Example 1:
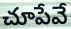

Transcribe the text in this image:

చూపేవే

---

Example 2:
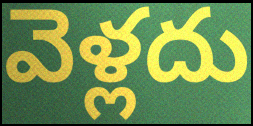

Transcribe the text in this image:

వెళ్లదు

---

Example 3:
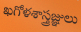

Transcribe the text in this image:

ఖగోళశాస్త్రజ్ఞులు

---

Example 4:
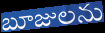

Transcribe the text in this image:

బూజులను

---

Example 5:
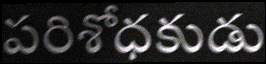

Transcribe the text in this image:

పరిశోధకుడు